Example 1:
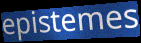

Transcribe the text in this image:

epistemes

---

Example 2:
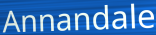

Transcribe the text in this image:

Annandale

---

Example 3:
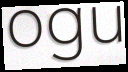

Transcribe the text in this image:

ogu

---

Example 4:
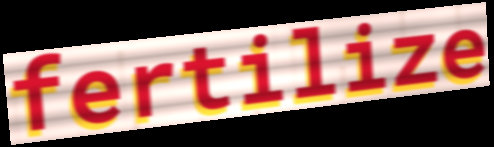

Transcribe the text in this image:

fertilize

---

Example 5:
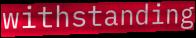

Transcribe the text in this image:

withstanding